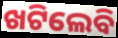
ଖଟିଲେବି